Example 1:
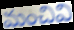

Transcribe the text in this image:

మంచివి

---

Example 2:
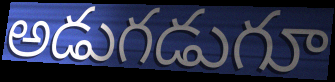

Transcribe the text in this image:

అడుగడుగూ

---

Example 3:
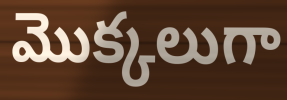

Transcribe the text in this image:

మొక్కలుగా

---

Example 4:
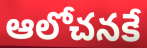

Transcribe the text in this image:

ఆలోచనకే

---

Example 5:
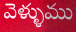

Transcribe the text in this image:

వెళ్ళుము